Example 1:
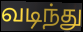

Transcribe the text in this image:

வடிந்து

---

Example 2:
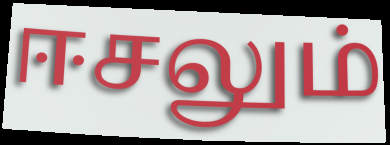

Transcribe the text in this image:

ஈசலும்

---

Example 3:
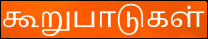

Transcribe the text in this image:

கூறுபாடுகள்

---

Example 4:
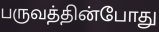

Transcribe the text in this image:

பருவத்தின்போது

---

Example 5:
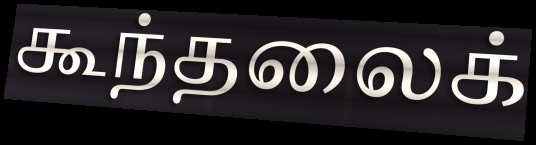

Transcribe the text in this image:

கூந்தலைக்